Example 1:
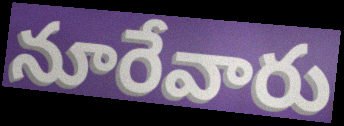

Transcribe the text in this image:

నూరేవారు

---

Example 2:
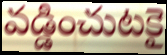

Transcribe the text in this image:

వడ్డించుటకై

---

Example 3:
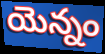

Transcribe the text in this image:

యెన్నం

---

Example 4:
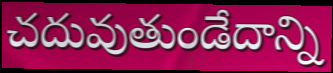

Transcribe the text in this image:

చదువుతుండేదాన్ని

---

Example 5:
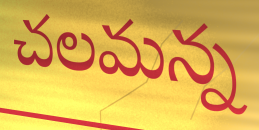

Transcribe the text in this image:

చలమన్న